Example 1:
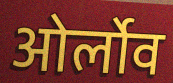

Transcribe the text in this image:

ओर्लोव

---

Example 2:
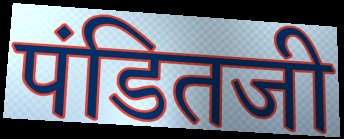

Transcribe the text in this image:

पंडितजी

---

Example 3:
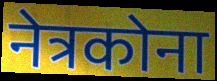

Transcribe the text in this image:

नेत्रकोना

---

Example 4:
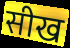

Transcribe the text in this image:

सीख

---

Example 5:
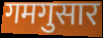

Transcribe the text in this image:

गमगुसार